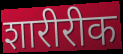
शारीरीक